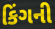
કિંગની